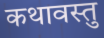
कथावस्‍तु